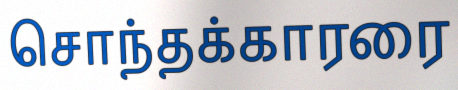
சொந்தக்காரரை